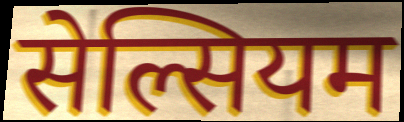
सेल्सियम